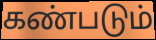
கண்படும்